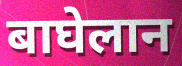
बाघेलान